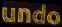
undo